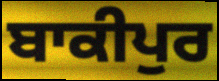
ਬਾਕੀਪੁਰ